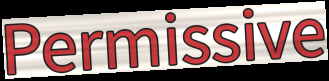
Permissive